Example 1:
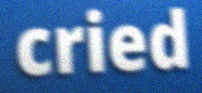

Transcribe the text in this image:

cried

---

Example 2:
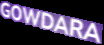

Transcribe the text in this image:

GOWDARA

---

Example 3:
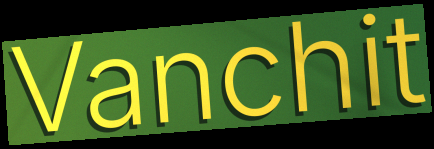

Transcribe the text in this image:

Vanchit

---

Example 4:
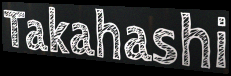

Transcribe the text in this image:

Takahashi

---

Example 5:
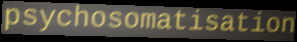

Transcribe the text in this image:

psychosomatisation